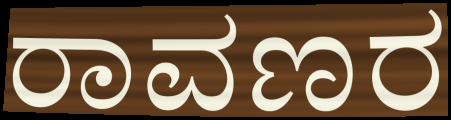
ರಾವಣರ